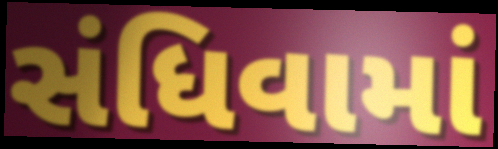
સંધિવામાં